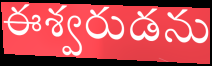
ఈశ్వరుడను